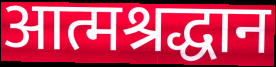
आत्मश्रद्धान